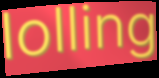
lolling